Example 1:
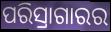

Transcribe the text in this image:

ପରିସ୍ରାଗାରର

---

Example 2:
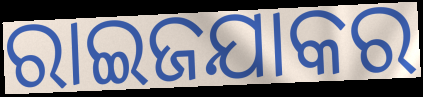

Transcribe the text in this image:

ରାଇଜଯାକର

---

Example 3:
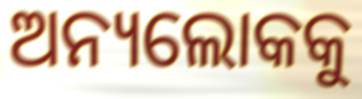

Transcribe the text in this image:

ଅନ୍ୟଲୋକକୁ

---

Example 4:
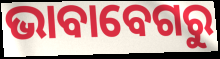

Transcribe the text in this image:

ଭାବାବେଗରୁ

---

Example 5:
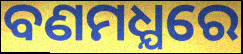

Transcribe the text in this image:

ବଣମଧ୍ଯରେ